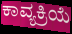
ಕಾವ್ಯಕ್ರಿಯೆ